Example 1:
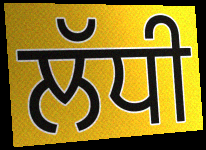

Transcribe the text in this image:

ਲੱਧੀ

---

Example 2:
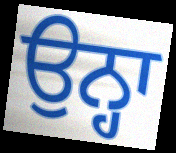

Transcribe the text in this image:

ਉਨ੍ਹਾ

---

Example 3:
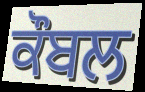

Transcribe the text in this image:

ਕੌਬਲ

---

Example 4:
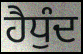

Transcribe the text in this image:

ਹੈਧੁੰਦ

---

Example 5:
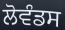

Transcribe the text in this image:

ਲੋਵੰਡਸ